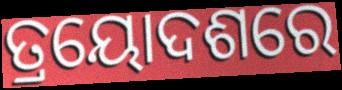
ତ୍ରୟୋଦଶରେ